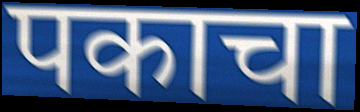
पकाचा